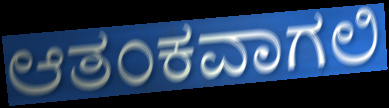
ಆತಂಕವಾಗಲಿ